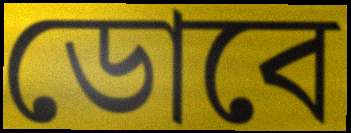
ডোবে